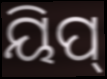
ୟିପ୍